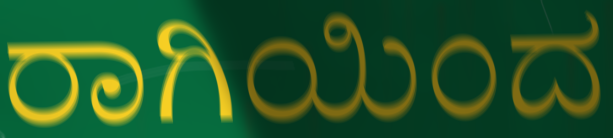
ರಾಗಿಯಿಂದ